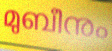
മുബീനും